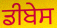
ਡੀਬੇਸ